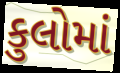
કુલોમાં